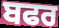
ਬਫਰ